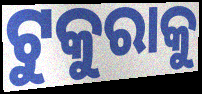
ଟୁକୁରାକୁ